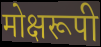
मोक्षरूपी